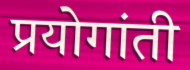
प्रयोगांती